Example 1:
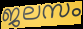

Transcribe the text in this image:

ജലസം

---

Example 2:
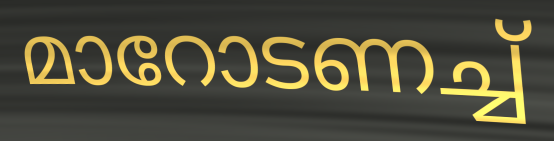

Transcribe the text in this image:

മാറോടണച്ച്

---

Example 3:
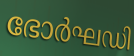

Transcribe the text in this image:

ഭോർഘഡി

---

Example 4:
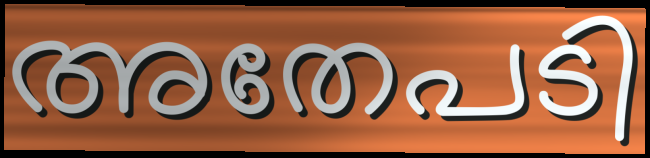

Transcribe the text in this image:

അതേപടി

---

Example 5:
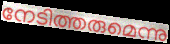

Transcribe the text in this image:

നേടിത്തരുമെന്നു